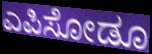
ಎಪಿಸೋಡೂ